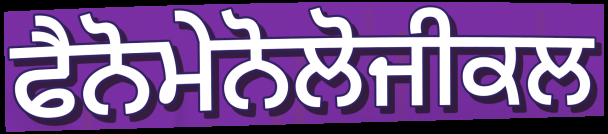
ਫੈਨੋਮੇਨੋਲੋਜੀਕਲ